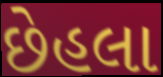
છેહલા